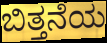
ಬಿತ್ತನೆಯ